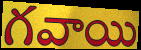
గవాయి